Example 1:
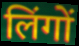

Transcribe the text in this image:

लिंगों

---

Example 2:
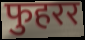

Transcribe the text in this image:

फुहरर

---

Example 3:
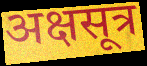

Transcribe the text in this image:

अक्षसूत्र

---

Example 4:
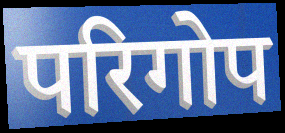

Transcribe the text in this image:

परिगोप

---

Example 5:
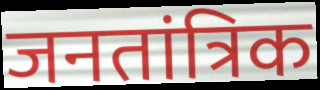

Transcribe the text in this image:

जनतांत्रिक